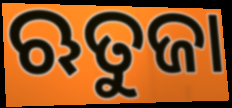
ଋତୁଜା